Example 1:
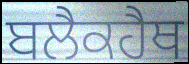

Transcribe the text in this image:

ਬਲੈਕਹੈਥ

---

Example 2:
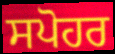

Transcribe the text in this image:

ਸਪੋਹਰ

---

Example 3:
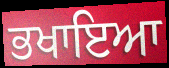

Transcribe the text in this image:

ਭਖਾਇਆ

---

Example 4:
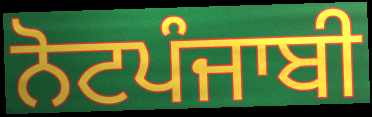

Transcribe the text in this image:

ਨੋਟਪੰਜਾਬੀ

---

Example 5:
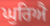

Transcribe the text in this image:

ਘੁਰਿਐ